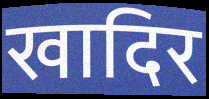
खादिर